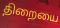
திறையை